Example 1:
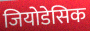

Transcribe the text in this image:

जियोडेसिक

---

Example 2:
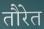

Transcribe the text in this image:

तौरेत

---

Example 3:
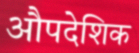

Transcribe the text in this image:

औपदेशिक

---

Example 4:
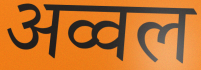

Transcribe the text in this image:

अव्वल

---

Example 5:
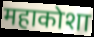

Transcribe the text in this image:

महाकोशा